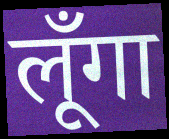
लूँगा